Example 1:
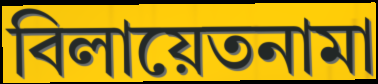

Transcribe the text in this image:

বিলায়েতনামা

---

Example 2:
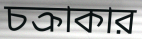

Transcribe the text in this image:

চক্রাকার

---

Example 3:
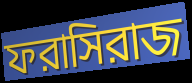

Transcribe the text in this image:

ফরাসিরাজ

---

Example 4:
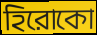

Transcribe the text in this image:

হিরোকো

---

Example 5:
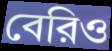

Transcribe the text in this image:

বেরিও